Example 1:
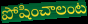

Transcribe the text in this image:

పోషించాలంట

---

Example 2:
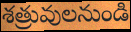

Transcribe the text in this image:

శత్రువులనుండి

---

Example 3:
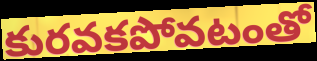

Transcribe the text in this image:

కురవకపోవటంతో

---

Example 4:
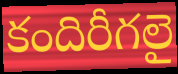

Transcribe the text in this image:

కందిరీగలై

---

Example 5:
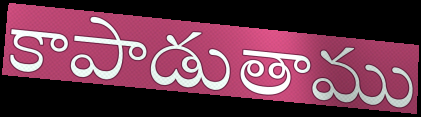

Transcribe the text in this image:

కాపాడుతాము